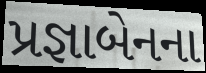
પ્રજ્ઞાબેનના